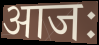
आजः